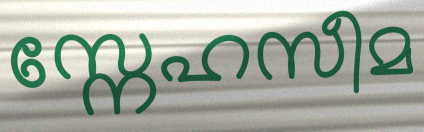
സ്നേഹസീമ